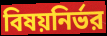
বিষয়নির্ভর